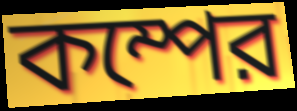
কম্পের